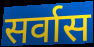
सर्वास